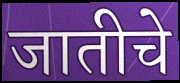
जातीचे